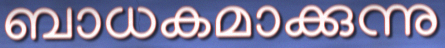
ബാധകമാക്കുന്നു